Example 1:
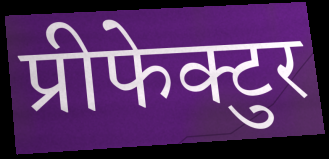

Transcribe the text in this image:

प्रीफेक्टुर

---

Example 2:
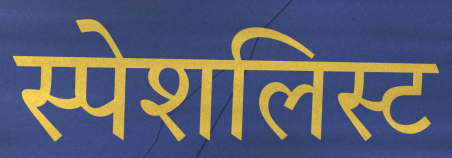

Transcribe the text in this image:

स्पेशलिस्ट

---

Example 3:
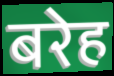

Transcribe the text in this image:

बरेह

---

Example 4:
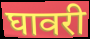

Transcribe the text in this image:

घावरी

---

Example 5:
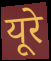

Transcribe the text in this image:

यूरे